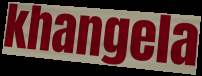
khangela